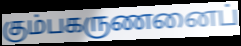
கும்பகருணனைப்